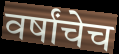
वर्षांचेच